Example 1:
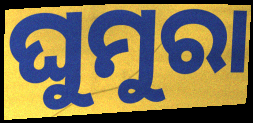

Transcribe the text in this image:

ଘୁମୁରା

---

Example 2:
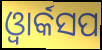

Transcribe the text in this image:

ଓ୍ୱାର୍କସପ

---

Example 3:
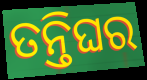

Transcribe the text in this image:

ତନ୍ତିଘର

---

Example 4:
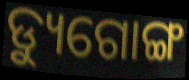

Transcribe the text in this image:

ଡ୍ୟୁଗୋଙ୍ଗ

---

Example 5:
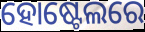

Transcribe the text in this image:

ହୋଷ୍ଟେଲରେ